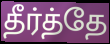
தீர்த்தே